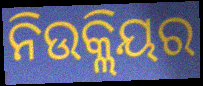
ନିଉକ୍ଲିୟର